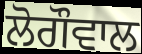
ਲੋਗੌਵਾਲ